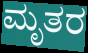
ಮೃತರ